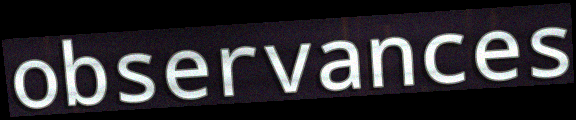
observances